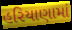
હરિયાણામાં